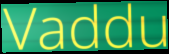
Vaddu